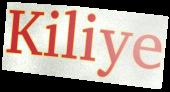
Kiliye